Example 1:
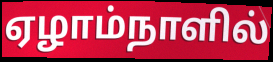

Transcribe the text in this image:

ஏழாம்நாளில்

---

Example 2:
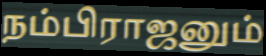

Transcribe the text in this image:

நம்பிராஜனும்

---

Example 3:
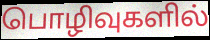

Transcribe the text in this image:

பொழிவுகளில்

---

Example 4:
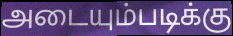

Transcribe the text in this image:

அடையும்படிக்கு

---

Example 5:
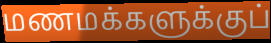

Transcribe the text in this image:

மணமக்களுக்குப்